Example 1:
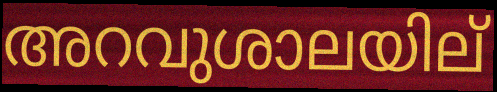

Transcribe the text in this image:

അറവുശാലയില്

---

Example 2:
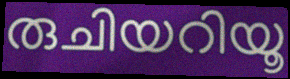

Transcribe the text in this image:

രുചിയറിയൂ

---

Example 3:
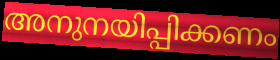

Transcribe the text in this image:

അനുനയിപ്പിക്കണം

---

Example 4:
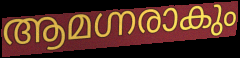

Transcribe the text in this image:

ആമഗ്നരാകും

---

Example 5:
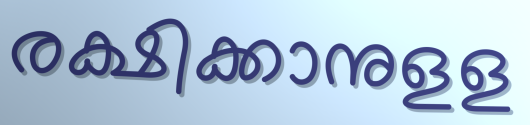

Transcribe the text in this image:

രക്ഷിക്കാനുളള